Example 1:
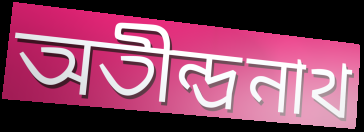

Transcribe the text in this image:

অতীন্দ্রনাথ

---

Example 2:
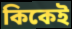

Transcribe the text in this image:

কিকেই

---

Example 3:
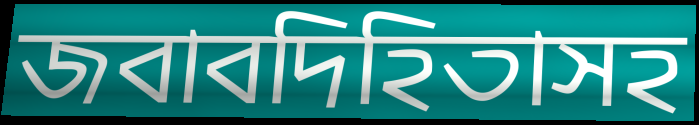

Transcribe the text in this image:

জবাবদিহিতাসহ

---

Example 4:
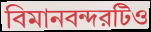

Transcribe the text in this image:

বিমানবন্দরটিও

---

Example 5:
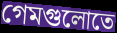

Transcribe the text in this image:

গেমগুলোতে